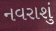
નવરાશું